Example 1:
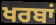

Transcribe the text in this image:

ਖਰਬਾਂ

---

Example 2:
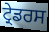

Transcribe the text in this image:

ਟ੍ਰੇਡਰਸ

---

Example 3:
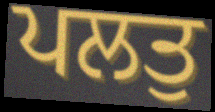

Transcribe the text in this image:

ਪਲਤੁ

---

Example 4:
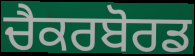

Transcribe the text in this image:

ਚੈਕਰਬੋਰਡ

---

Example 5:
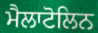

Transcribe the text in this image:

ਮੈਲਾਟੋਲਿਨ